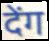
देंग